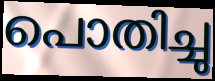
പൊതിച്ചു